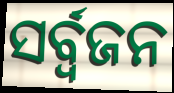
ସର୍ବ୍ବଜନ